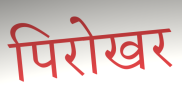
पिरोखर